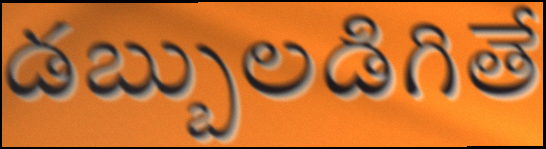
డబ్బులడిగితే